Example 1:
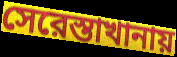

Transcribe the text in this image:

সেরেস্তাখানায়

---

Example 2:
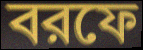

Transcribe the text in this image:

বরফে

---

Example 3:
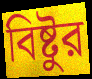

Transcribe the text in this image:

বিষ্টুর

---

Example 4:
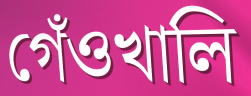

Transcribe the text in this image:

গেঁওখালি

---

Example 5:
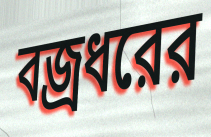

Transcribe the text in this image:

বজ্রধরের